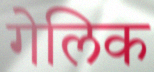
गेलिक